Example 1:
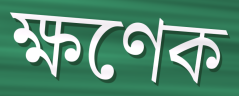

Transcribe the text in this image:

ক্ষণেক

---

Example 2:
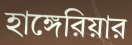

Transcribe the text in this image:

হাঙ্গেরিয়ার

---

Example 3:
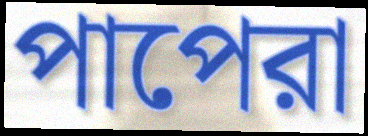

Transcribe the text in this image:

পাপেরা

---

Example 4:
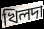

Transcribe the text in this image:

খিলদা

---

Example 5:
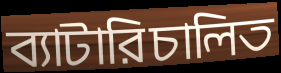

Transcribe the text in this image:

ব্যাটারিচালিত